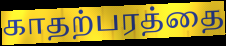
காதற்பரத்தை